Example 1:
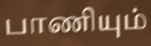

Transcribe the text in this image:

பாணியும்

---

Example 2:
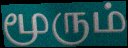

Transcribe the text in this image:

மூரும்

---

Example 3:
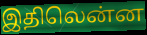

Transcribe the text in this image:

இதிலென்ன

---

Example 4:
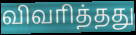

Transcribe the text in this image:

விவரித்தது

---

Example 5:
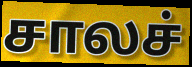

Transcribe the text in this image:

சாலச்